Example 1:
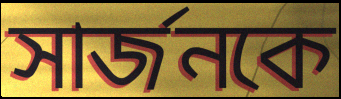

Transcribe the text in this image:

সার্জনকে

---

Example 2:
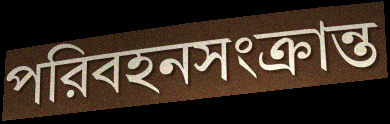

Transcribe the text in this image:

পরিবহনসংক্রান্ত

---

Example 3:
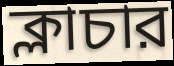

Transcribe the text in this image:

ক্লাচার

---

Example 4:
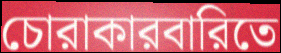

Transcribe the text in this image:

চোরাকারবারিতে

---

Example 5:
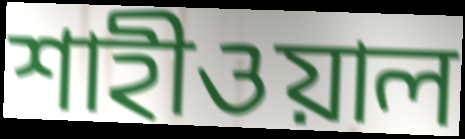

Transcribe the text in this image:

শাহীওয়াল